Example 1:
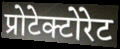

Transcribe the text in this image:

प्रोटेक्टोरेट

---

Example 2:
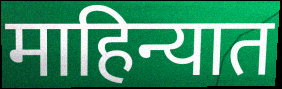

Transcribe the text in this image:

माहिन्यात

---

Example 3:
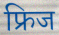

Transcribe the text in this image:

फ्रिज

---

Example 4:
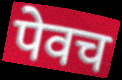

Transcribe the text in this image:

पेवच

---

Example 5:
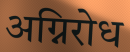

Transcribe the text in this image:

अग्निरोध